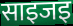
साइजइ